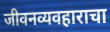
जीवनव्यवहाराचा